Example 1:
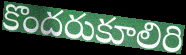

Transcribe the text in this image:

కొందరుకూలిరి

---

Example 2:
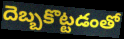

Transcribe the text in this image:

దెబ్బకొట్టడంతో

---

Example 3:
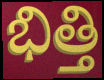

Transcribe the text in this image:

భిత్తి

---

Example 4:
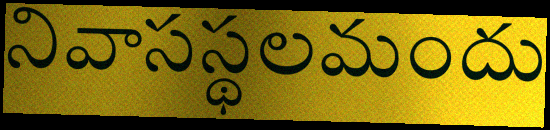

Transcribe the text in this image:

నివాసస్థలమందు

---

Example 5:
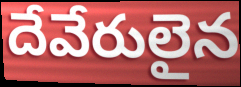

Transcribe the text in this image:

దేవేరులైన